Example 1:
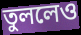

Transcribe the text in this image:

তুললেও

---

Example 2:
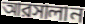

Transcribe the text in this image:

আরসালান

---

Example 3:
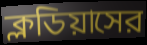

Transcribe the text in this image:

ক্লডিয়াসের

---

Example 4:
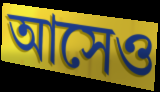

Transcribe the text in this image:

আসেও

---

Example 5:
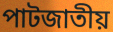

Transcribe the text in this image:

পাটজাতীয়